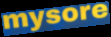
mysore